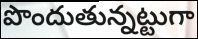
పొందుతున్నట్టుగా